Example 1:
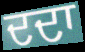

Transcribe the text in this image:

ਦਦਾ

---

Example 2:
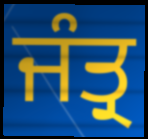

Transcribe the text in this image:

ਜੰਤ੍ਰ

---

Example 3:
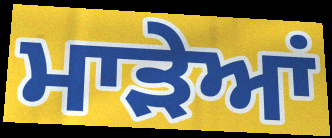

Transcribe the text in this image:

ਮਾੜੇਆਂ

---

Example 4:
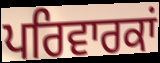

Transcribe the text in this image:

ਪਰਿਵਾਰਕਾਂ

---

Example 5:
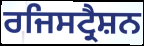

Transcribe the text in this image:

ਰਜਿਸਟ੍ਰੈਸ਼ਨ